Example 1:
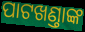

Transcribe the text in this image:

ପାଟଖଣ୍ତାଙ୍କ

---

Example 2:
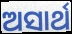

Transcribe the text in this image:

ଅସାର୍ଥ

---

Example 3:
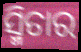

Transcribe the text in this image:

ସ୍ମିତାର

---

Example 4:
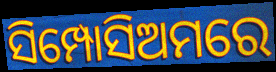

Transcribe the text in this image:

ସିମ୍ପୋସିଅମରେ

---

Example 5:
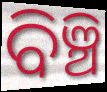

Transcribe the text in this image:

ବିଞ୍ଚି